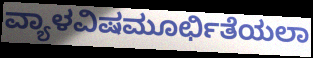
ವ್ಯಾಳವಿಷಮೂರ್ಛಿತೆಯಲಾ